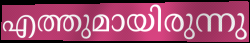
എത്തുമായിരുന്നു